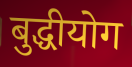
बुद्धीयोग